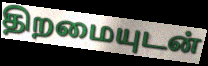
திறமையுடன்